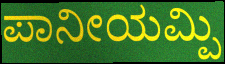
ಪಾನೀಯಮ್ಪಿ